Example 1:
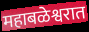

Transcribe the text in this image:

महाबळेश्वरात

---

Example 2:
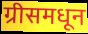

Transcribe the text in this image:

ग्रीसमधून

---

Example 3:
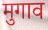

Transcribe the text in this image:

मुगाव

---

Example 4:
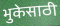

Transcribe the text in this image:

भुकेसाठी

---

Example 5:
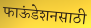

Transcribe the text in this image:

फाऊंडेशनसाठी